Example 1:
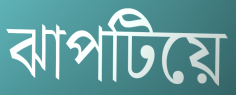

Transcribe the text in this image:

ঝাপটিয়ে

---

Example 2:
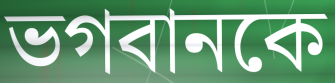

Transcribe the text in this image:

ভগবানকে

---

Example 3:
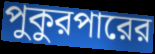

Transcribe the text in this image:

পুকুরপারের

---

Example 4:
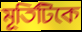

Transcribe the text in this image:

মূর্তিটিকে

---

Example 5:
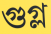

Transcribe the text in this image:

গুগ্ল